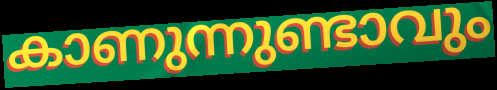
കാണുന്നുണ്ടാവും